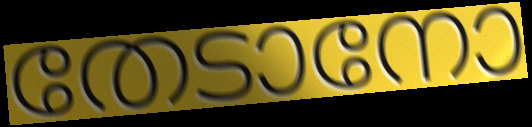
തേടാനോ